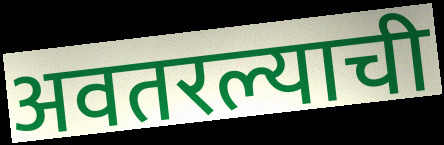
अवतरल्याची